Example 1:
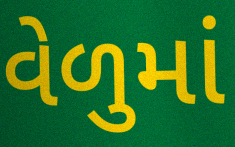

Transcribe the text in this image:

વેળુમાં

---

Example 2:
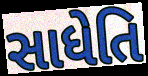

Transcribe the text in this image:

સાધેતિ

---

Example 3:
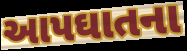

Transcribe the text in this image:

આપઘાતના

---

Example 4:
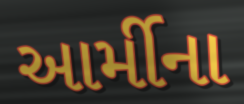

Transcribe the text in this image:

આર્મીના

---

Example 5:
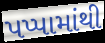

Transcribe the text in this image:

પપ્પામાંથી